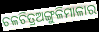
ଚଳଚିତ୍ରଅଙ୍ଗୁଳିମାଳାର